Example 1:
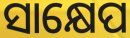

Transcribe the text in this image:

ସାକ୍ଷେପ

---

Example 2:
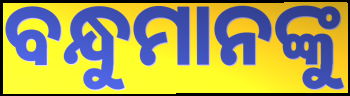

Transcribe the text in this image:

ବନ୍ଧୁମାନଙ୍କୁ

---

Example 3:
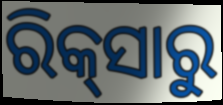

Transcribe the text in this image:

ରିକ୍‌ସାରୁ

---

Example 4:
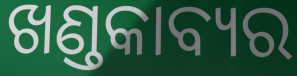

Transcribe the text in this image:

ଖଣ୍ଡକାବ୍ୟର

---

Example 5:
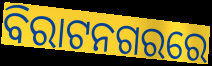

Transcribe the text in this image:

ବିରାଟନଗରରେ